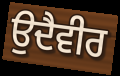
ਉਦੈਵੀਰ